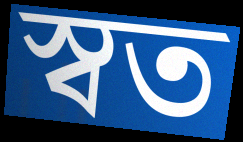
স্বত